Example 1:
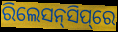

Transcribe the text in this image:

ରିଲେସନ୍‌ସିପ୍‌ରେ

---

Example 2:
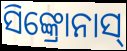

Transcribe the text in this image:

ସିଙ୍କ୍ରୋନାସ୍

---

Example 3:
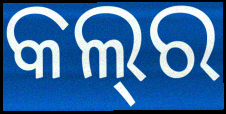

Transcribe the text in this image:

କଲ୍‌ର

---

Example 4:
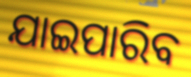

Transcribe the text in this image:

ଯାଇପାରିବ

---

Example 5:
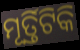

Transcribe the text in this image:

ମୂର୍ତ୍ତିଟିକି